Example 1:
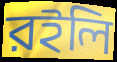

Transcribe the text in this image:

রইলি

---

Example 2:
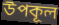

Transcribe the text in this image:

উপকূল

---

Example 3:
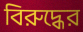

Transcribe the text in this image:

বিরুদ্ধের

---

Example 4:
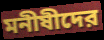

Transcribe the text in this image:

মনীষীদের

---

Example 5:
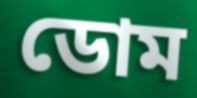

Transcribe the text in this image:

ডোম